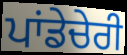
ਪਾਂਡੇਚੇਰੀ